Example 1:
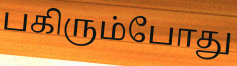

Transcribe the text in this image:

பகிரும்போது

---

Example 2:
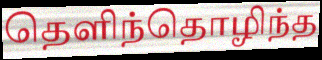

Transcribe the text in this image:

தெளிந்தொழிந்த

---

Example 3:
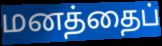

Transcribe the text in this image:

மனத்தைப்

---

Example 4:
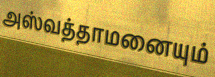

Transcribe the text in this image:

அஸ்வத்தாமனையும்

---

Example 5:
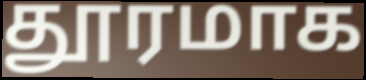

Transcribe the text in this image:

தூரமாக